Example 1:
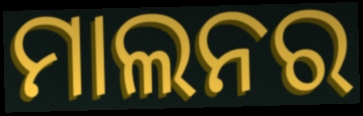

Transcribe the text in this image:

ମାଲନର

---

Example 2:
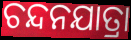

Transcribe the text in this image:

ଚନ୍ଦନଯାତ୍ରା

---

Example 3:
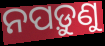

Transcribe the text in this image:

ନପଡ଼ୁଣୁ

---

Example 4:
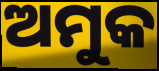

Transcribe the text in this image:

ଅମୁକ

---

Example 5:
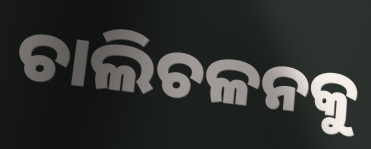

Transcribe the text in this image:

ଚାଲିଚଳନକୁ